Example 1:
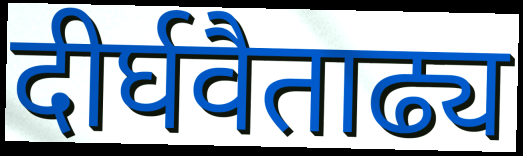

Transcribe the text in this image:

दीर्घवैताढ्य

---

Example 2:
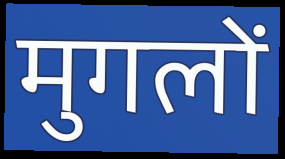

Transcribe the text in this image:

मुगलों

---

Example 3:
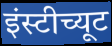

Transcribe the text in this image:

इंस्‍टीच्‍यूट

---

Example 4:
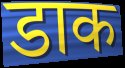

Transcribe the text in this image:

डाक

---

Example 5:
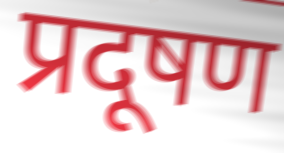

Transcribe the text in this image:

प्रदूषण